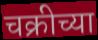
चक्रीच्या